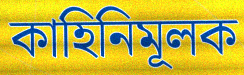
কাহিনিমূলক